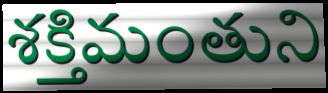
శక్తిమంతుని